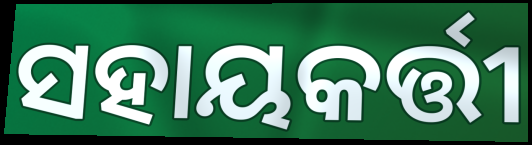
ସହାୟକର୍ତ୍ତୀ